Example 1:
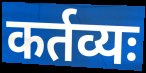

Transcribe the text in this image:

कर्तव्यः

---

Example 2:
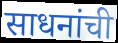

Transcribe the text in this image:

साधनांची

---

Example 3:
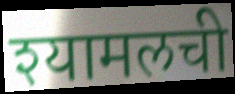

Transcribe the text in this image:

श्यामलची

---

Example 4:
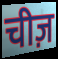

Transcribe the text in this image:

चीज़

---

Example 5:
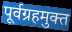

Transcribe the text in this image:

पूर्वग्रहमुक्त